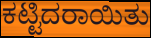
ಕಟ್ಟಿದರಾಯಿತು